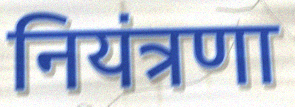
नियंत्रणा